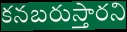
కనబరుస్తారని